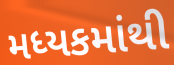
મધ્યકમાંથી